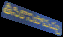
తీసికొనిపోవచ్చు